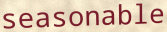
seasonable